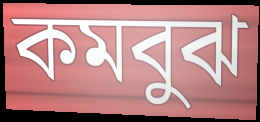
কমবুঝ